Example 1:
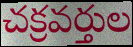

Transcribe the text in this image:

చక్రవర్తుల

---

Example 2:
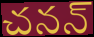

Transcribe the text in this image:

చనన్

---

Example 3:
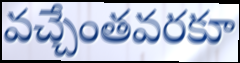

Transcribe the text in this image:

వచ్చేంతవరకూ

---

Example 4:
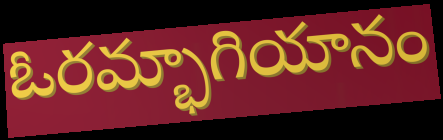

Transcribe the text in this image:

ఓరమ్భాగియానం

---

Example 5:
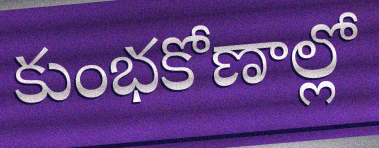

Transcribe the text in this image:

కుంభకోణాల్లో